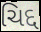
ચિદ્દ